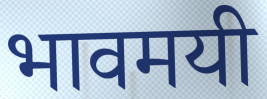
भावमयी